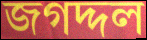
জগদ্দল